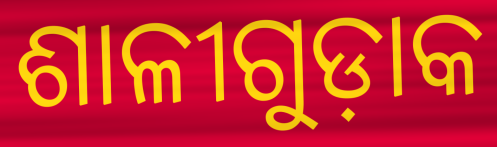
ଶାଳୀଗୁଡ଼ାକ